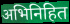
अभिनिहित